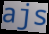
ajs